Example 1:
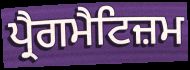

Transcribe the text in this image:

ਪ੍ਰੈਗਮੈਟਿਜ਼ਮ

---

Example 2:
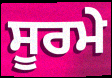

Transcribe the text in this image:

ਸੂਰਮੇ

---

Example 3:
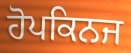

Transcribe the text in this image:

ਹੋਪਕਿਨਜ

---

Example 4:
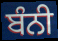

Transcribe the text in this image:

ਬੰਨੀ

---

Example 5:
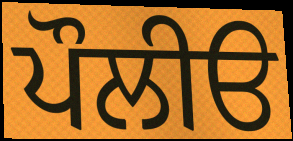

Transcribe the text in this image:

ਪੌਲੀੳ